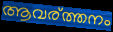
ആവര്ത്തനം